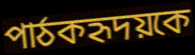
পাঠকহৃদয়কে